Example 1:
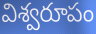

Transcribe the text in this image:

విశ్వరూపం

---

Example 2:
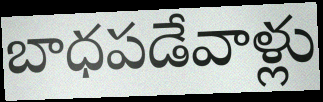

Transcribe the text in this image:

బాధపడేవాళ్లు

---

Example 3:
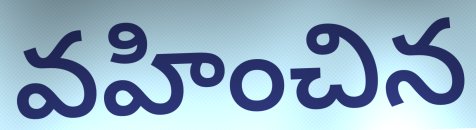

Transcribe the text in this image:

వహించిన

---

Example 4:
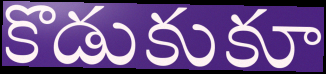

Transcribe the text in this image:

కొడుకుకూ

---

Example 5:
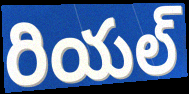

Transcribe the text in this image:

రియల్